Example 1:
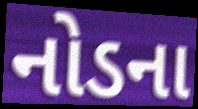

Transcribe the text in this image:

નોડના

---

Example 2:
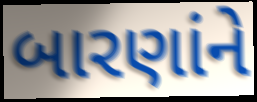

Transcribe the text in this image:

બારણાંને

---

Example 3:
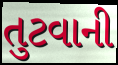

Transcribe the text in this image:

તુટવાની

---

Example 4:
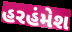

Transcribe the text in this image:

હરહંમેશ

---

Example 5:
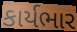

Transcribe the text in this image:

કાર્યભાર